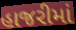
હાજરીમાં